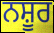
ਨਸ਼ੂਰ